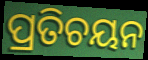
ପ୍ରତିଚୟନ